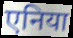
एनिया